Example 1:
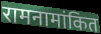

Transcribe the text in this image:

रामनामांकित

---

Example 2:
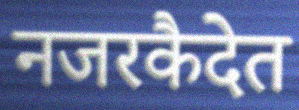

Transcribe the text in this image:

नजरकैदेत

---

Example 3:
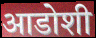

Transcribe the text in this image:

आडोशी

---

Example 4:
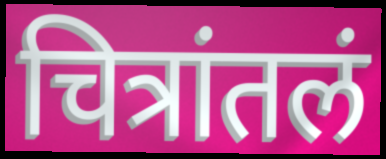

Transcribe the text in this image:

चित्रांतलं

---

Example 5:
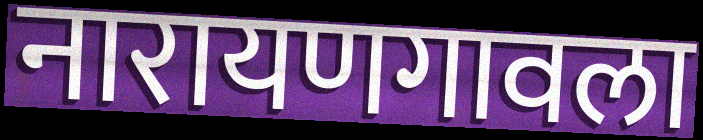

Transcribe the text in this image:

नारायणगावला